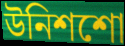
উনিশশো